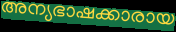
അന്യഭാഷക്കാരായ